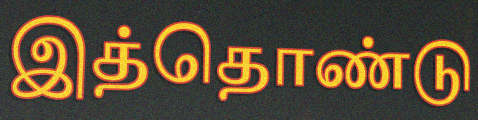
இத்தொண்டு